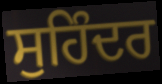
ਸੁਹਿੰਦਰ